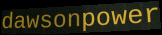
dawsonpower